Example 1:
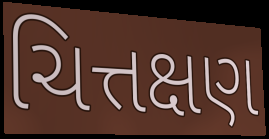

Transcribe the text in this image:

ચિત્તક્ષણ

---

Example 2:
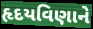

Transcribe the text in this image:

હૃદયવિણાને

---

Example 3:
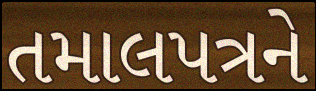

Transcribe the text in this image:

તમાલપત્રને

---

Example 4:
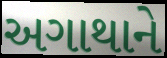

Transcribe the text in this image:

અગાથાને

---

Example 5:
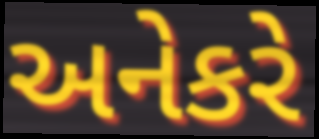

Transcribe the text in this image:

અનેકરે